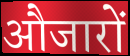
औजारों